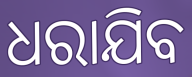
ଧରାଯିବ